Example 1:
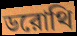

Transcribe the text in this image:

ডরোথি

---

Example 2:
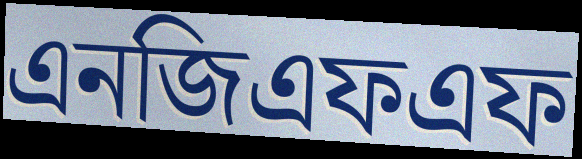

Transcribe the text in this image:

এনজিএফএফ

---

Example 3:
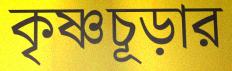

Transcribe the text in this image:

কৃষ্ণচূড়ার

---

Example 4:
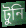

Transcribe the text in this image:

টুনি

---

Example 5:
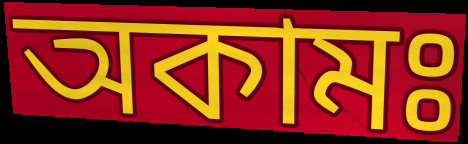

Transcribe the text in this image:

অকামঃ